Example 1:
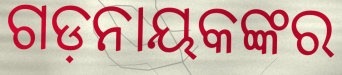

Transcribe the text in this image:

ଗଡ଼ନାୟକଙ୍କର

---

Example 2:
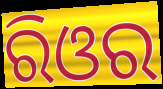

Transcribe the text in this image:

ରିଓର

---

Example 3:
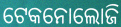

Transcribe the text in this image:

ଟେକନୋଲୋଜି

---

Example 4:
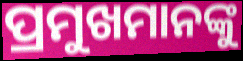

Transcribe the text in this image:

ପ୍ରମୁଖମାନଙ୍କୁ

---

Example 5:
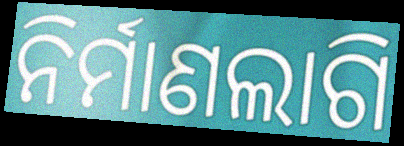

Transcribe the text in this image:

ନିର୍ମାଣଲାଗି